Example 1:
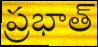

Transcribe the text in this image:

ప్రభాత్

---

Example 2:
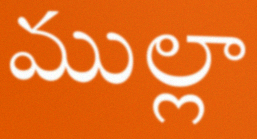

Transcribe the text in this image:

ముల్లా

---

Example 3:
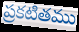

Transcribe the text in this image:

ప్రకటితము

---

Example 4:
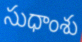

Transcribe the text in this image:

సుధాంశు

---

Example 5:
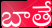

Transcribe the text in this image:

బాతే